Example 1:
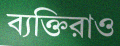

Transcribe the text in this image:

ব্যক্তিরাও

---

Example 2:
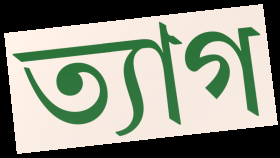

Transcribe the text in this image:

ত্যাগ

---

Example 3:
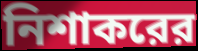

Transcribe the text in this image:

নিশাকরের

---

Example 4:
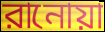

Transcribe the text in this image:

রানোয়া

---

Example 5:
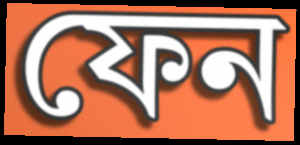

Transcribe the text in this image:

ফেন